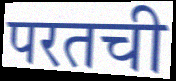
परतची